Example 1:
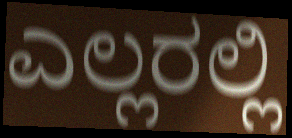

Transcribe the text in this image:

ಎಲ್ಲರಲ್ಲಿ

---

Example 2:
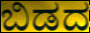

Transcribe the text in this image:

ಬಿಡದ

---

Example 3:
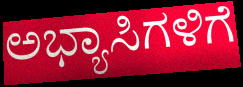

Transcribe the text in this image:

ಅಭ್ಯಾಸಿಗಳಿಗೆ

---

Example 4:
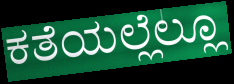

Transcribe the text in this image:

ಕತೆಯಲ್ಲೆಲ್ಲೂ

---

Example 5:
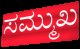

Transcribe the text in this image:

ಸಮ್ಮುಖ